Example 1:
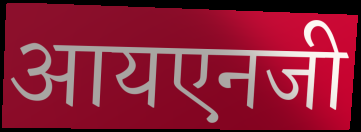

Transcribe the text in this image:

आयएनजी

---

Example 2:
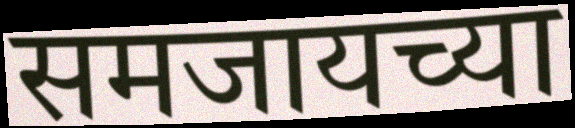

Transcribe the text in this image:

समजायच्या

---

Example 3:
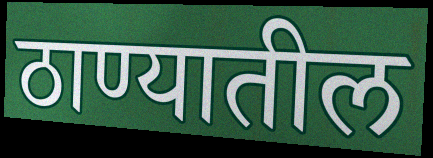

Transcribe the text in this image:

ठाण्यातील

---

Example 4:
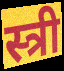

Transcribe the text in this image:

स्त्री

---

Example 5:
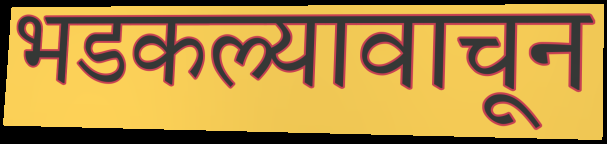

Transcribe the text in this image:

भडकल्यावाचून